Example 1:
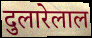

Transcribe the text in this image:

दुलारेलाल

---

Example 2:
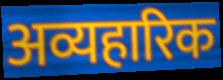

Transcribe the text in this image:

अव्यहारिक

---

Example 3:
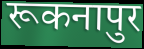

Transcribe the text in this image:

रूकनापुर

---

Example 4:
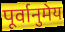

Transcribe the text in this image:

पूर्वानुमेय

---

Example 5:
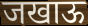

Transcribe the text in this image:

जखाऊ